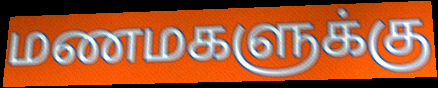
மணமகளுக்கு